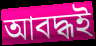
আবদ্ধই